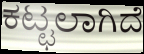
ಕಟ್ಟಲಾಗಿದೆ